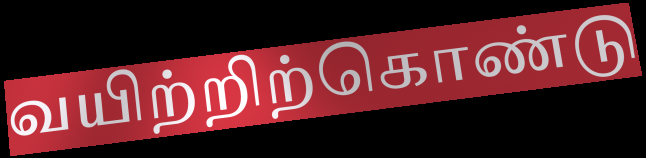
வயிற்றிற்கொண்டு